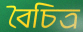
বৈচিত্র